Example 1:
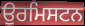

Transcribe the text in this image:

ਉਰਮਿਸਟਨ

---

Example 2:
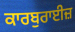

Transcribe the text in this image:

ਕਾਰਬੁਰਾਈਜ਼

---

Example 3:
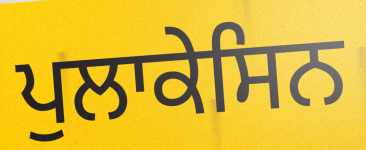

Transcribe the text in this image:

ਪੁਲਾਕੇਸਿਨ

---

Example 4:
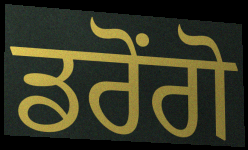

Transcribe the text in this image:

ਡਰੋਂਗੋ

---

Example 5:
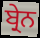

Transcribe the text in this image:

ਬ੍ਰੇਨ